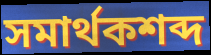
সমার্থকশব্দ